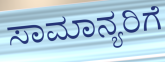
ಸಾಮಾನ್ಯರಿಗೆ